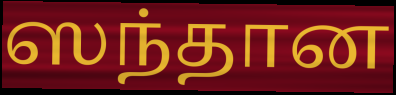
ஸந்தான